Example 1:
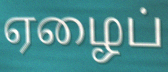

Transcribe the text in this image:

ஏழைப்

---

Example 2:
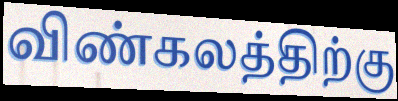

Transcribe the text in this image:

விண்கலத்திற்கு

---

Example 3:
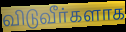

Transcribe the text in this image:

விடுவீர்களாக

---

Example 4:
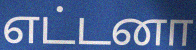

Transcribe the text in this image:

எட்டனா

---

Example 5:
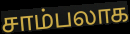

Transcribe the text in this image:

சாம்பலாக